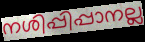
നശിപ്പിപ്പാനല്ല